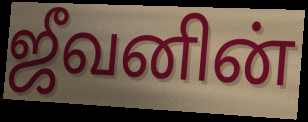
ஜீவனின்